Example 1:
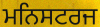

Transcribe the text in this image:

ਮਨਿਸਟਰਜ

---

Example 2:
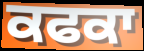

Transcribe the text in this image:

ਕਫਕਾ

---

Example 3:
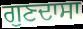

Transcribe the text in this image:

ਗੁਣਦਾਸਾ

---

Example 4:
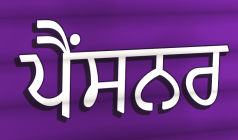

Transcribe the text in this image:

ਪੈਂਸਨਰ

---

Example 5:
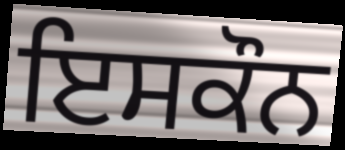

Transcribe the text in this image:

ਇਸਕੌਨ